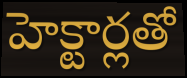
హెక్టార్లతో